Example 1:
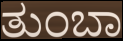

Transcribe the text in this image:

ತುಂಬಾ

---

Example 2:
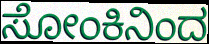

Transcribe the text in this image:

ಸೋಂಕಿನಿಂದ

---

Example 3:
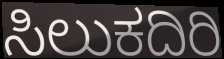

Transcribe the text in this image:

ಸಿಲುಕದಿರಿ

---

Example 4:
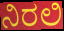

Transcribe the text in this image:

ನಿರಲಿ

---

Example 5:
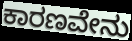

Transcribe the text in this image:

ಕಾರಣವೇನು